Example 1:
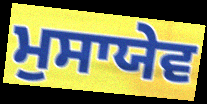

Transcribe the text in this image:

ਮੁਸਾਯੇਵ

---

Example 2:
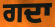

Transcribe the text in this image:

ਗਦਾ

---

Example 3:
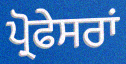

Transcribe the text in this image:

ਪ੍ਰੋਫੇਸਰਾਂ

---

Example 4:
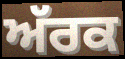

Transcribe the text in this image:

ਅੱਰਕ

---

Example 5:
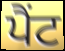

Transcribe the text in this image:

ਪੈਂਟ